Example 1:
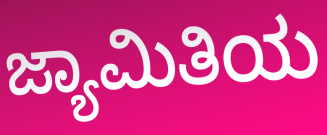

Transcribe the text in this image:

ಜ್ಯಾಮಿತಿಯ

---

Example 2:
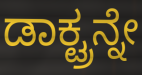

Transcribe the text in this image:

ಡಾಕ್ಟ್ರನ್ನೇ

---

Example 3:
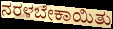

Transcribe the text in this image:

ನರಳಬೇಕಾಯಿತು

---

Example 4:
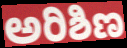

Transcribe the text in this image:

ಅರಿಶಿಣ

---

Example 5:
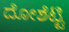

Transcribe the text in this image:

ದೋಶೆಟ್ಟಿ